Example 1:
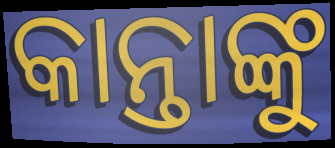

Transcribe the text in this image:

କାନ୍ତାଙ୍କୁ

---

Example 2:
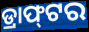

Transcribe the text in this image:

ଡ୍ରାଫ୍‌ଟର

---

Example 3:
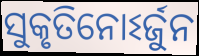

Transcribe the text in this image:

ସୁକୃତିନୋଽର୍ଜୁନ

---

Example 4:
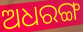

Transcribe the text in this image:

ଅଧରଙ୍ଗ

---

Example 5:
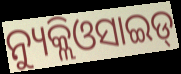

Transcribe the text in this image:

ନ୍ୟୁକ୍ଲିଓସାଇଡ୍